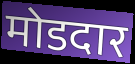
मोडदार